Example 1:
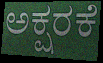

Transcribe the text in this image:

ಅಕ್ಷರಕೆ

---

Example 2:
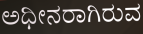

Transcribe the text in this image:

ಅಧೀನರಾಗಿರುವ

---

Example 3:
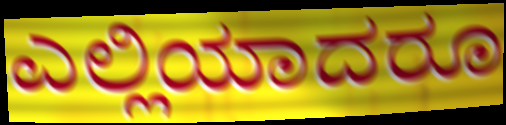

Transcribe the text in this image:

ಎಲ್ಲಿಯಾದರೂ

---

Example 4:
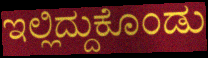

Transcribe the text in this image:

ಇಲ್ಲಿದ್ದುಕೊಂಡು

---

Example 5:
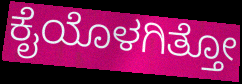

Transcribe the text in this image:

ಕೈಯೊಳಗಿತ್ತೋ